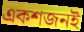
একশজনই